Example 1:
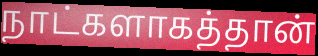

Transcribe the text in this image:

நாட்களாகத்தான்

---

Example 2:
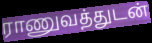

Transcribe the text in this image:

ராணுவத்துடன்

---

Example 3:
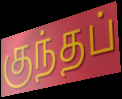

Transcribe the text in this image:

குந்தப்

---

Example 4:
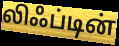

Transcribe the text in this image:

லிஃப்டின்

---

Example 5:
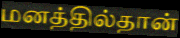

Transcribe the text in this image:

மனத்தில்தான்